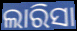
ଲାରିସା